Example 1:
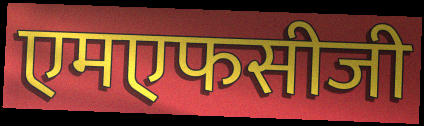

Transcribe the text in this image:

एमएफसीजी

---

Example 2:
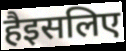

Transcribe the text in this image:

हैइसलिए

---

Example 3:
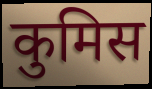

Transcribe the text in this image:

कुमिस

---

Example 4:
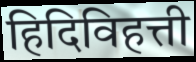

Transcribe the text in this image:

हिदिविहत्ती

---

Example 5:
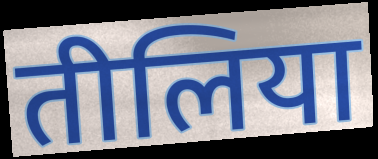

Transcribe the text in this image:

तीलिया